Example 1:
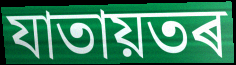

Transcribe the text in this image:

যাতায়তৰ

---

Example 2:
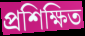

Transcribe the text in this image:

প্ৰশিক্ষিত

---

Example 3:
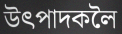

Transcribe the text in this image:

উৎপাদকলৈ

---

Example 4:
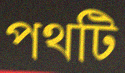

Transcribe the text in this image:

পথটি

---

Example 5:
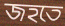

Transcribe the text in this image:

জহতে